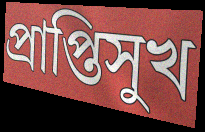
প্রাপ্তিসুখ